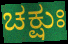
ಚಕ್ಷುಃ